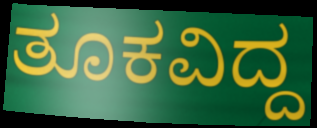
ತೂಕವಿದ್ದ